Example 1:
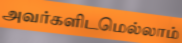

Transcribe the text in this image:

அவர்களிடமெல்லாம்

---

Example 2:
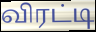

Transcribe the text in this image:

விரட்டி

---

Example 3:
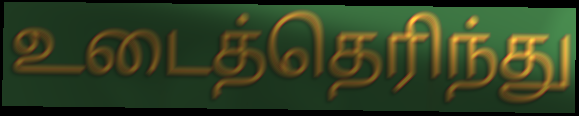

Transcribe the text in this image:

உடைத்தெரிந்து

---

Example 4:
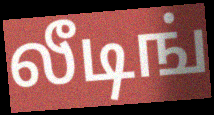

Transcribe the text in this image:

லீடிங்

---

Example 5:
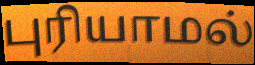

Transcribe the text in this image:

புரியாமல்